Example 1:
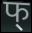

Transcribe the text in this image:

फ्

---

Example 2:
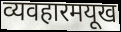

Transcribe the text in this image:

व्यवहारमयूख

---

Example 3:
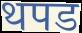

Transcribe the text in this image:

थपड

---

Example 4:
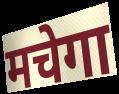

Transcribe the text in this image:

मचेगा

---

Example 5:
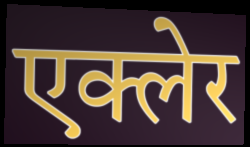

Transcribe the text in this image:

एक्लेर